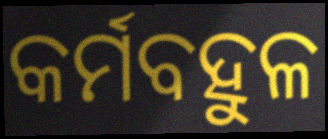
କର୍ମବହୁଳ